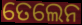
ତେଲେନ